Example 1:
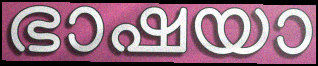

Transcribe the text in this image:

ഭാഷയാ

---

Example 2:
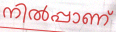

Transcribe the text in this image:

നിൽപ്പാണ്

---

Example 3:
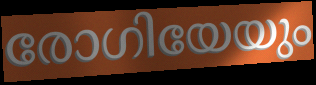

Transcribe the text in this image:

രോഗിയേയും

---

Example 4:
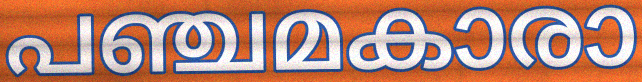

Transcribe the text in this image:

പഞ്ചമകാരാ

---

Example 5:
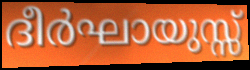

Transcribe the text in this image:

ദീർഘായുസ്സ്